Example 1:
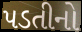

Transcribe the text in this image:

પડતીનો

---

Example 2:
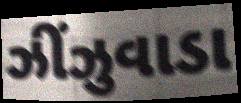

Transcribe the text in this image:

ઝીંઝુવાડા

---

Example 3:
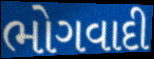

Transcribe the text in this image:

ભોગવાદી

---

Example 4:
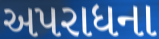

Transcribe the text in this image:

અપરાધના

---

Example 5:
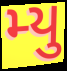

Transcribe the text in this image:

મ્યુ